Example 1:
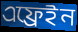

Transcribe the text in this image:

এফ্রেইন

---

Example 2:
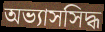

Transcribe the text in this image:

অভ্যাসসিদ্ধ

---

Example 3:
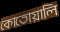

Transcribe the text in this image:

কোতোয়ালি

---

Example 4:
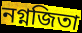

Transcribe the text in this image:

নগ্নজিতা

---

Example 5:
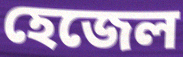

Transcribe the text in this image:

হেজেল